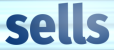
sells